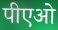
पीएओ